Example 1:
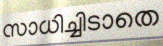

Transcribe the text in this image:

സാധിച്ചിടാതെ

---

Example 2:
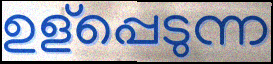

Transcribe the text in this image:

ഉള്പ്പെടുന്ന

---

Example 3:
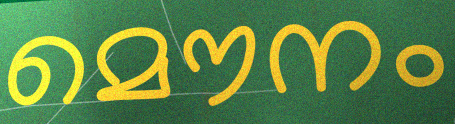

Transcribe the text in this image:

മൌനം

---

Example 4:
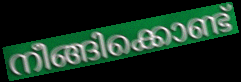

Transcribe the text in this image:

നീങ്ങിക്കൊണ്ട്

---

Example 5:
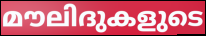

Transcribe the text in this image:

മൗലിദുകളുടെ